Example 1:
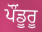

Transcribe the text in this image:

ਪੌਂਡੂਰੂ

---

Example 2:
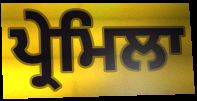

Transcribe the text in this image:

ਪ੍ਰੇਮਿਲਾ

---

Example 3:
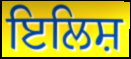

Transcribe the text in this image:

ਇਲਿਸ਼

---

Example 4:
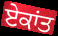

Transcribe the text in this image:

ਏਕਾਂਤ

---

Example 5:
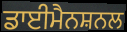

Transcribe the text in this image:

ਡਾਈਮੈਨਸ਼ਨਲ